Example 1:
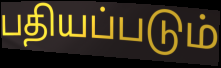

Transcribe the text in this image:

பதியப்படும்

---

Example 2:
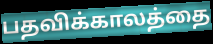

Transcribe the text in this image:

பதவிக்காலத்தை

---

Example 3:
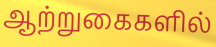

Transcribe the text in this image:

ஆற்றுகைகளில்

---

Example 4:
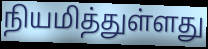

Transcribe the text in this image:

நியமித்துள்ளது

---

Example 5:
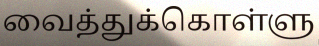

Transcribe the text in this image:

வைத்துக்கொள்ளு